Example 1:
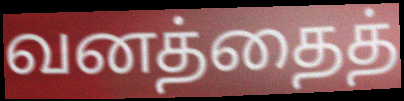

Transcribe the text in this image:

வனத்தைத்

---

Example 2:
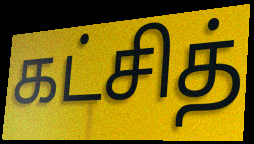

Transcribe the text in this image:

கட்சித்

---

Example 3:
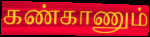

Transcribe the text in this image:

கண்காணும்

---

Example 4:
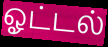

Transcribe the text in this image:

ஓட்டல்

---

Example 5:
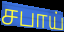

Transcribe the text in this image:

சபாய்